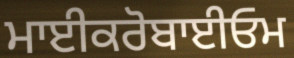
ਮਾਈਕਰੋਬਾਈਓਮ